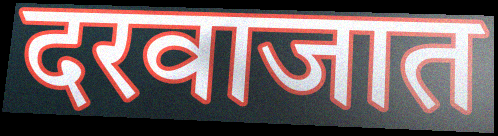
दरवाजात